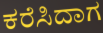
ಕರೆಸಿದಾಗ